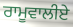
ਰਾਮੂਵਾਲੀਏ